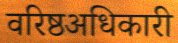
वरिष्ठअधिकारी